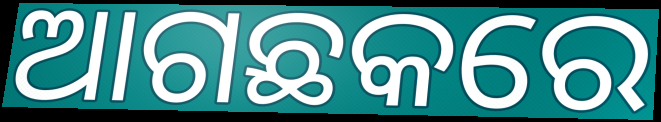
ଆଗଛକରେ